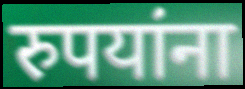
रुपयांना